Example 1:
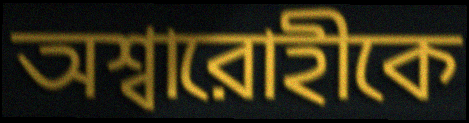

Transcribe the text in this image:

অশ্বারোহীকে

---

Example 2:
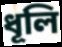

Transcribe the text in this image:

ধূলি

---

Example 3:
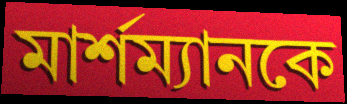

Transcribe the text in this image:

মার্শম্যানকে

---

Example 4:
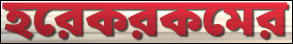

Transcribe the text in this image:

হরেকরকমের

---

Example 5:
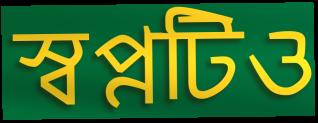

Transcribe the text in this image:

স্বপ্নটিও